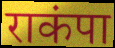
राकंपा